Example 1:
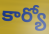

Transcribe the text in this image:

కార్యో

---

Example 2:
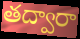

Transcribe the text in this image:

తద్వారా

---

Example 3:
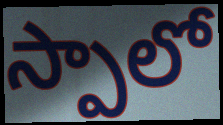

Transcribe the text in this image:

స్పాలో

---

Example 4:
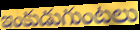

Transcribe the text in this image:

ఇంకుడుగుంటలు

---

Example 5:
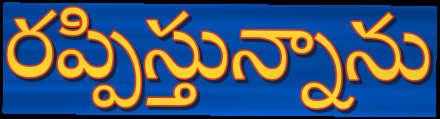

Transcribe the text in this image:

రప్పిస్తున్నాను